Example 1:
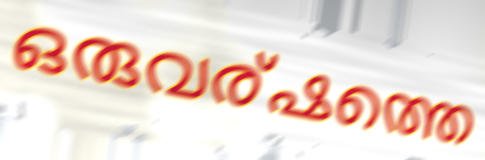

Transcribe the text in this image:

ഒരുവര്ഷത്തെ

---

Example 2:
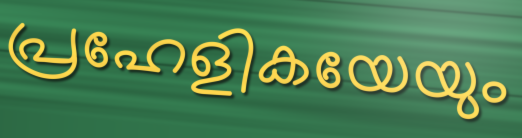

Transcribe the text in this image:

പ്രഹേളികയേയും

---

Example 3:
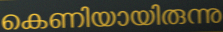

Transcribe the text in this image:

കെണിയായിരുന്നു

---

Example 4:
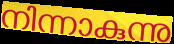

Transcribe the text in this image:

നിന്നാകുന്നു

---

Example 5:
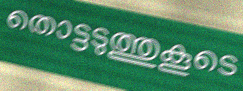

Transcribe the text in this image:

തൊട്ടടുത്തുകൂടെ